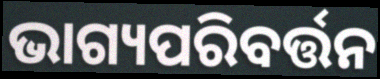
ଭାଗ୍ୟପରିବର୍ତ୍ତନ